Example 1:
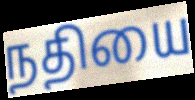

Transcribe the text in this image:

நதியை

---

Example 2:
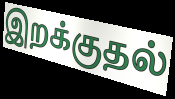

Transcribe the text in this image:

இறக்குதல்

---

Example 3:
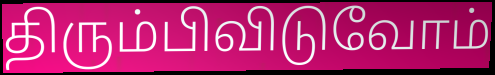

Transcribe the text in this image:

திரும்பிவிடுவோம்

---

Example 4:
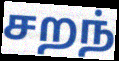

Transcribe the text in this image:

சறந்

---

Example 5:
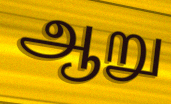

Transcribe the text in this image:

ஆறு